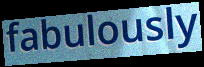
fabulously